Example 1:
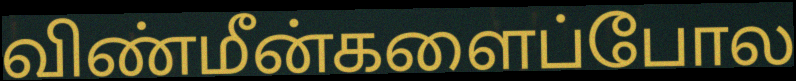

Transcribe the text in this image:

விண்மீன்களைப்போல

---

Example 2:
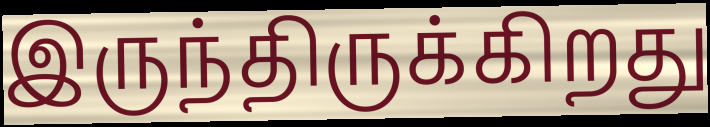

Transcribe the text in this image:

இருந்திருக்கிறது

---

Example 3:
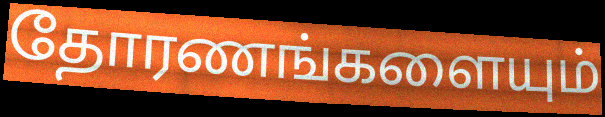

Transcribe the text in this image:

தோரணங்களையும்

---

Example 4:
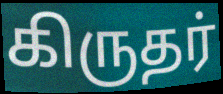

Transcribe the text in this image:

கிருதர்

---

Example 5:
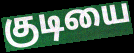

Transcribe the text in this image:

குடியை